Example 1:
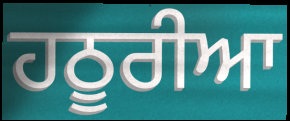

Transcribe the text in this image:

ਹਠੂਰੀਆ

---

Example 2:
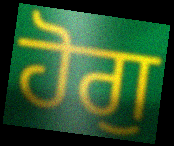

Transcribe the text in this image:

ਹੋਗੁ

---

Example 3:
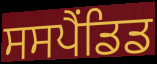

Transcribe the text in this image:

ਸਸਪੈਂਡਿਡ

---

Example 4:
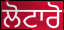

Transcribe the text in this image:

ਲੋਟਾਰੋ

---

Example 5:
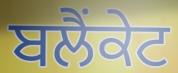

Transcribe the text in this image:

ਬਲੈਂਕੇਟ